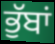
ਭੁੱਬਾਂ